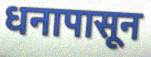
धनापासून